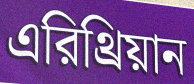
এরিথ্রিয়ান